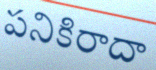
పనికిరాదా